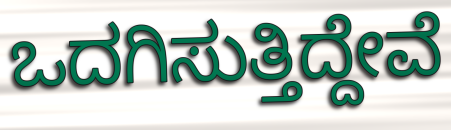
ಒದಗಿಸುತ್ತಿದ್ದೇವೆ